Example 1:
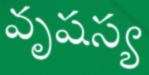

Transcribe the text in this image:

వృషస్య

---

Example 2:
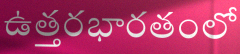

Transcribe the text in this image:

ఉత్తరభారతంలో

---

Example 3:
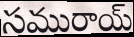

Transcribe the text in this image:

సమురాయ్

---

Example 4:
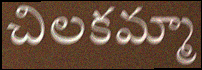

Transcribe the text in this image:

చిలకమ్మా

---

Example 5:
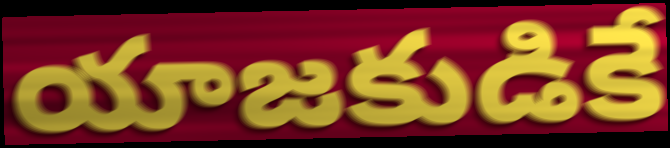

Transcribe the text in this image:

యాజకుడికే